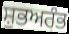
ਸ਼ੁਭਅਰੰਭ